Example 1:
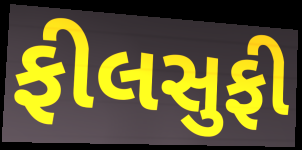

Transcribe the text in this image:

ફીલસુફી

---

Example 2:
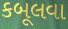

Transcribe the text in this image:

કબૂલવા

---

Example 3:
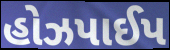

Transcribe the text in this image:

હોઝપાઈપ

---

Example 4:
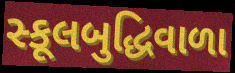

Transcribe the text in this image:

સ્કૂલબુદ્ધિવાળા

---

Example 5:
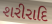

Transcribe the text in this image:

શરીરાદિ